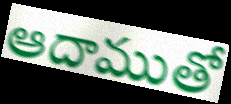
ఆదాముతో